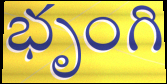
భృంగి